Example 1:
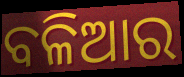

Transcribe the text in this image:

ବଳିଆର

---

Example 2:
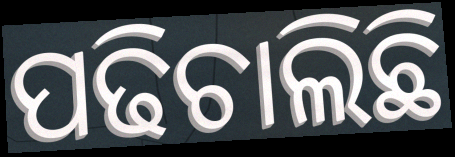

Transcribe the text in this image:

ପଢିଚାଲିଛି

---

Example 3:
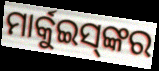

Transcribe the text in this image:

ମାର୍କୁଇସ୍‍ଙ୍କର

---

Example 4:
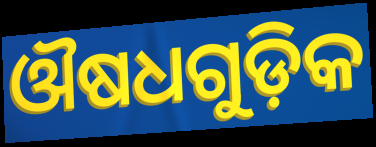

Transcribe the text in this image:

ଔଷଧଗୁଡ଼ିକ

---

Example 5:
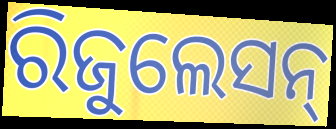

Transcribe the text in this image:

ରିଜୁଲେସନ୍